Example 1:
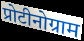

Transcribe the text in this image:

प्रोटीनोग्राम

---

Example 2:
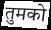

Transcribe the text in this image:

तुमको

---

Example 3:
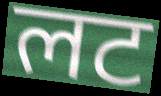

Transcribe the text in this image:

लट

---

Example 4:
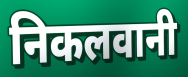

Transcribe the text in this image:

निकलवानी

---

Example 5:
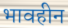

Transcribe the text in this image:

भावहीन